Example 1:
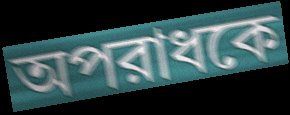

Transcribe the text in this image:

অপরাধকে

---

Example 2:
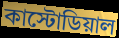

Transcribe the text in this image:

কাস্টোডিয়াল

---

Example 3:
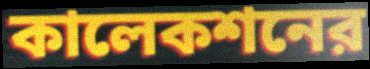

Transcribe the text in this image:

কালেকশনের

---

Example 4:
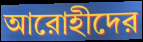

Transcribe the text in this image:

আরোহীদের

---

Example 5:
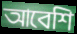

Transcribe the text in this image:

আবেশি